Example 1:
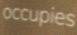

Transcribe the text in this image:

occupies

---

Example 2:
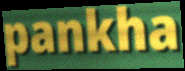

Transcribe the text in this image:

pankha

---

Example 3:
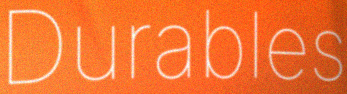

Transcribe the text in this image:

Durables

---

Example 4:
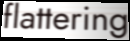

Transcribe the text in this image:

flattering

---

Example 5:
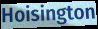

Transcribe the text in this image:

Hoisington